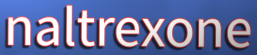
naltrexone